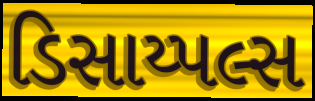
ડિસાય્પલ્સ